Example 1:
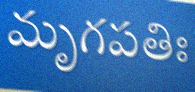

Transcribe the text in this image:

మృగపతిః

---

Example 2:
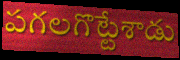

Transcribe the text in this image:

పగలగొట్టేశాడు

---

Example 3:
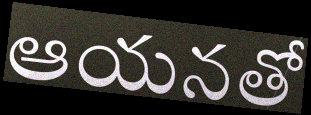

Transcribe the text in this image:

ఆయనతో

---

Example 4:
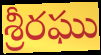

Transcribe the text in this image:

శ్రీరఘు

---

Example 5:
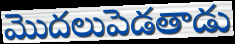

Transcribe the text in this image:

మొదలుపెడతాడు